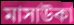
মাসাউকা